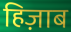
हिज़ाब